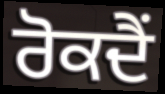
ਰੋਕਦੈਂ